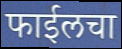
फाईलचा